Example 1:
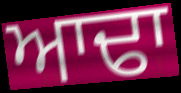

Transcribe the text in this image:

ਆਢਾ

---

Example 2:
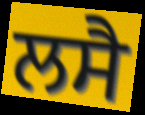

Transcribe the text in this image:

ਲਸੈ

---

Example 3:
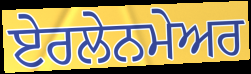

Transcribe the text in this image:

ਏਰਲੇਨਮੇਅਰ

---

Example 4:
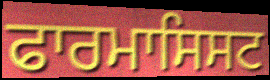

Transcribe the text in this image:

ਫਾਰਮਾਸਿਸਟ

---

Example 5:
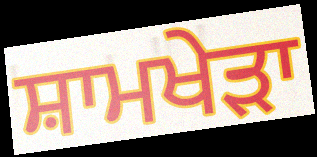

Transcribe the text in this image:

ਸ਼ਾਮਖੇੜਾ